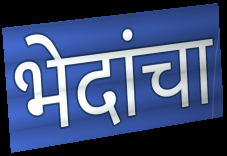
भेदांचा